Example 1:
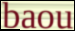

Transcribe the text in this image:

baou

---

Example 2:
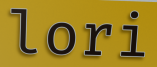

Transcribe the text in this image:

lori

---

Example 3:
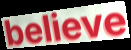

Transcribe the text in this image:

believe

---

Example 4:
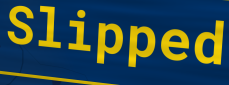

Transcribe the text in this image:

Slipped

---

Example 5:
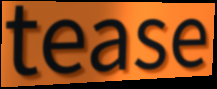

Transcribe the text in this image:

tease